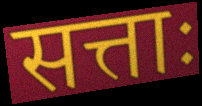
सत्ताः